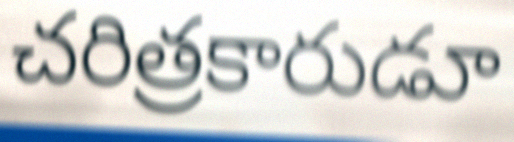
చరిత్రకారుడూ